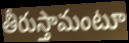
తీరుస్తామంటూ